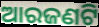
ଆରଜଣଟି